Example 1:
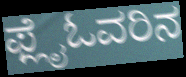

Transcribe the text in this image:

ಫ್ಲೈಓವರಿನ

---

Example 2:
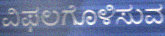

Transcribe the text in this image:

ವಿಫಲಗೊಳಿಸುವ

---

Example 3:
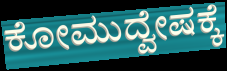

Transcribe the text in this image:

ಕೋಮುದ್ವೇಷಕ್ಕೆ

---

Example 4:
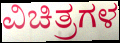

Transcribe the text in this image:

ವಿಚಿತ್ರಗಳ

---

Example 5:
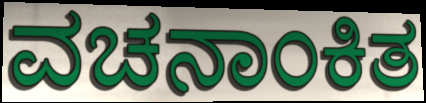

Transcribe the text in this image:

ವಚನಾಂಕಿತ